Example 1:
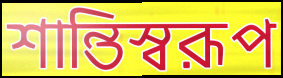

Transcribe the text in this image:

শান্তিস্বরূপ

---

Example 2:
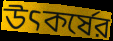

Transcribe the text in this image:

উৎকর্ষের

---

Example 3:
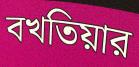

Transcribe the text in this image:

বখতিয়ার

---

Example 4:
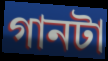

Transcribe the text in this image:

গানটা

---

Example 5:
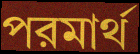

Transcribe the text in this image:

পরমার্থ